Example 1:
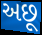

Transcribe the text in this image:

અછૂ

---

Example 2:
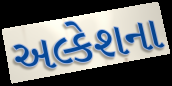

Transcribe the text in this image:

અલ્કેશના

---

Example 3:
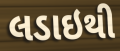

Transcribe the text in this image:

લડાઇથી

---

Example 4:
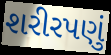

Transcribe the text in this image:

શરીરપણું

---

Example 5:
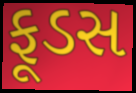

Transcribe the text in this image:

ફૂડસ